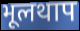
भूलथाप